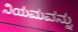
ನಿಯಮವನ್ನು